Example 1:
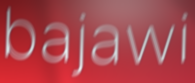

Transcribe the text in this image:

bajawi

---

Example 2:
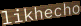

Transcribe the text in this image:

likhecho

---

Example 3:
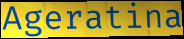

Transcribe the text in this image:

Ageratina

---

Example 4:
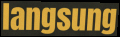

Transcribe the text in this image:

langsung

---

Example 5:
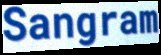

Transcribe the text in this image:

Sangram